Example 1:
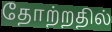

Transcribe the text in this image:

தோற்றதில்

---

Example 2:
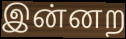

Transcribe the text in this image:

இன்னற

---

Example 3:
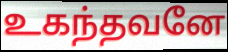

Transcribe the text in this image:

உகந்தவனே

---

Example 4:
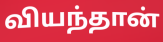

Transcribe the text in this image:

வியந்தான்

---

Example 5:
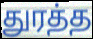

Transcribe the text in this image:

துரத்த